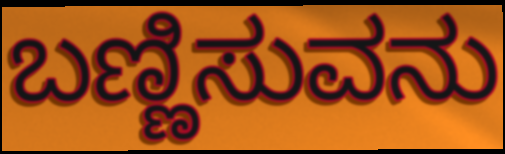
ಬಣ್ಣಿಸುವನು